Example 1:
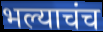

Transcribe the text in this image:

भल्याचंच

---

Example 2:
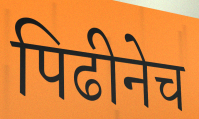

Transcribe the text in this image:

पिढीनेच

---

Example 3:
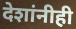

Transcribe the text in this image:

देशांनीही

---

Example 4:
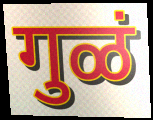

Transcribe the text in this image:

गुळं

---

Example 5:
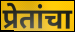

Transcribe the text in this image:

प्रेतांचा